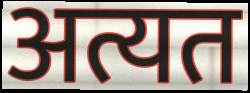
अत्यत